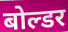
बोल्डर